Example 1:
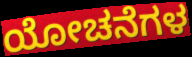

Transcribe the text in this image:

ಯೋಚನೆಗಳ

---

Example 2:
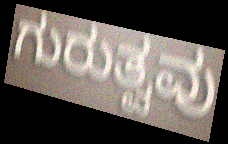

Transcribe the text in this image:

ಗುರುತ್ವವು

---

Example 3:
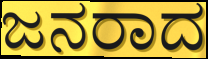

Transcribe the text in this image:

ಜನರಾದ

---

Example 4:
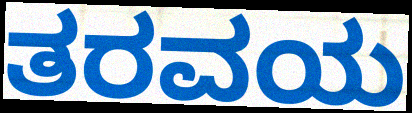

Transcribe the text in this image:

ತರವಯ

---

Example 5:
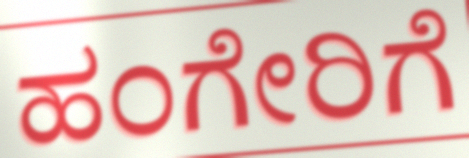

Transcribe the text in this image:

ಹಂಗೇರಿಗೆ